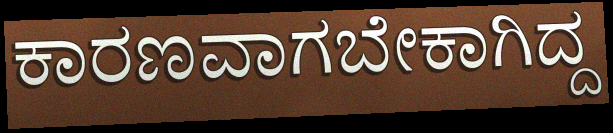
ಕಾರಣವಾಗಬೇಕಾಗಿದ್ದ